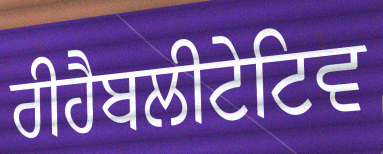
ਰੀਹੈਬਲੀਟੇਟਿਵ